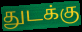
துடக்கு